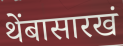
थेंबासारखं